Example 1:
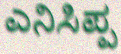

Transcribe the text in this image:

ಎನಿಸಿಪ್ಪ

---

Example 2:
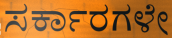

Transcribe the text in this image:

ಸರ್ಕಾರಗಳೇ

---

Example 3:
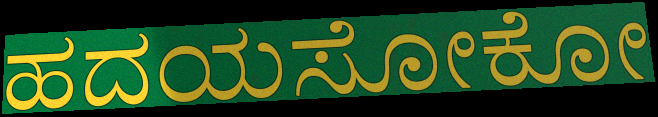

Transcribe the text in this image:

ಹದಯಸೋಕೋ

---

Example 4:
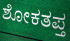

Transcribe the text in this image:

ಶೋಕತಪ್ತ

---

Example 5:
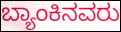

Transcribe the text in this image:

ಬ್ಯಾಂಕಿನವರು